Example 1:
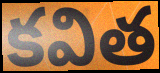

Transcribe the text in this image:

కవిత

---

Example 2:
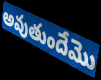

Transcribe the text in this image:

అవుతుందేమొ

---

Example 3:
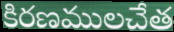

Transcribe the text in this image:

కిరణములచేత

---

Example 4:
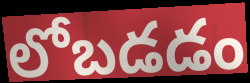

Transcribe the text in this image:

లోబడడం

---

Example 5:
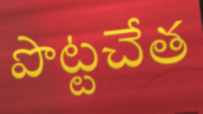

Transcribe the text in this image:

పొట్టచేత